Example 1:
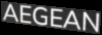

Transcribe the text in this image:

AEGEAN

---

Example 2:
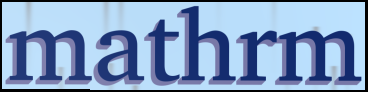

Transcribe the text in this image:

mathrm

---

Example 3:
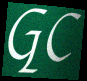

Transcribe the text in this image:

GC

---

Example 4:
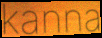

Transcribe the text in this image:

kanna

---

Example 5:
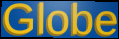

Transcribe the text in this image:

Globe